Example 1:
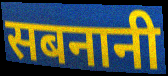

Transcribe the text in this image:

सबनानी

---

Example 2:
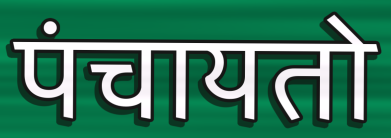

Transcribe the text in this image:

पंचायतो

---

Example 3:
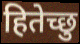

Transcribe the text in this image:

हितेच्छु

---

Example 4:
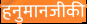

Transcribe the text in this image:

हनुमानजीकी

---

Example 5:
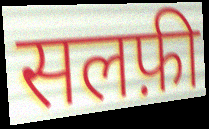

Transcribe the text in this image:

सलफ़ी